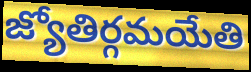
జ్యోతిర్గమయేతి